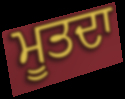
ਮੂਤਦਾ